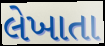
લેખાતા